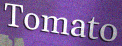
Tomato